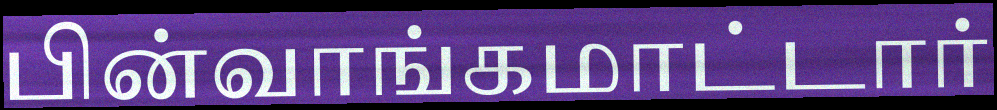
பின்வாங்கமாட்டார்